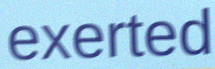
exerted